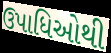
ઉપાધિઓથી